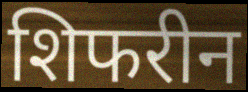
शिफरीन